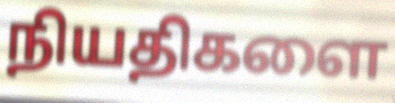
நியதிகளை